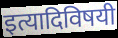
इत्यादिविषयी